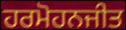
ਹਰਮੋਹਨਜੀਤ